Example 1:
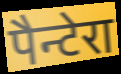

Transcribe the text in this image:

पैन्टेरा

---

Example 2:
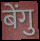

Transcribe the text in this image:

बेंगु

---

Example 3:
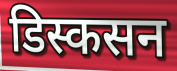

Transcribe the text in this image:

डिस्कसन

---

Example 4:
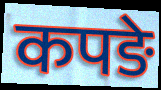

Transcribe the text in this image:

कपङे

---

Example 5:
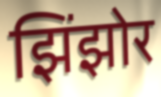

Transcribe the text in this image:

झिंझोर